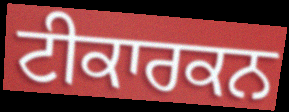
ਟੀਕਾਰਕਨ